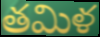
తమిళ